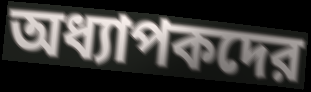
অধ্যাপকদের